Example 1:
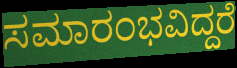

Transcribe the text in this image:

ಸಮಾರಂಭವಿದ್ದರೆ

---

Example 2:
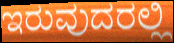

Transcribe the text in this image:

ಇರುವುದರಲ್ಲಿ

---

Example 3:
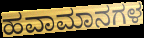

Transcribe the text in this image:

ಹವಾಮಾನಗಳ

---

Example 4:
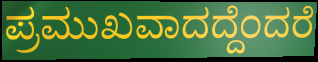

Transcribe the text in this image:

ಪ್ರಮುಖವಾದದ್ದೆಂದರೆ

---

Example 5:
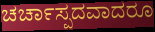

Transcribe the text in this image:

ಚರ್ಚಾಸ್ಪದವಾದರೂ